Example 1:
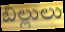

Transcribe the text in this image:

బిల్లులు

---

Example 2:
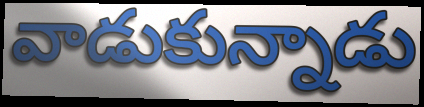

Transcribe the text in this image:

వాడుకున్నాడు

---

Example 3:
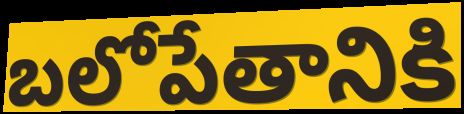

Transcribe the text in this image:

బలోపేతానికి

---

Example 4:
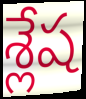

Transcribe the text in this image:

శ్లేష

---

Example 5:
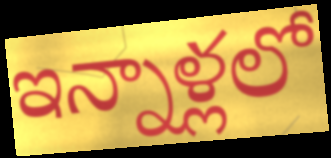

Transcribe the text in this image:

ఇన్నాళ్లలో